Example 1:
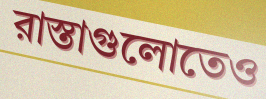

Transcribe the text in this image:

রাস্তাগুলোতেও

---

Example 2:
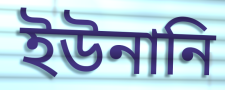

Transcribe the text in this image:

ইউনানি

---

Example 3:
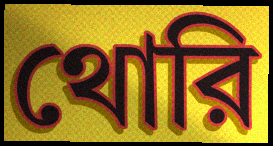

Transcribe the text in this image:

থোরি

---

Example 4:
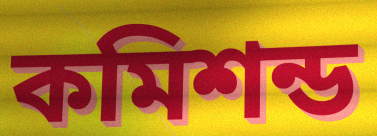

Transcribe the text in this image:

কমিশন্ড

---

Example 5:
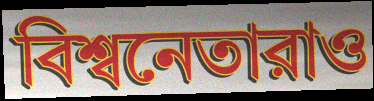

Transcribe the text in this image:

বিশ্বনেতারাও